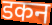
डकन